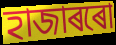
হাজাৰৰো